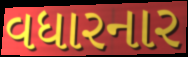
વધારનાર